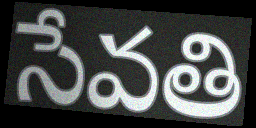
సేవతి